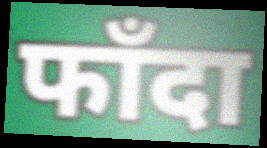
फाँदा